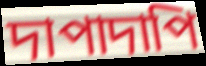
দাপাদাপি